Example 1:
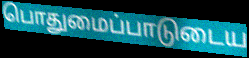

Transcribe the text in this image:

பொதுமைப்பாடுடைய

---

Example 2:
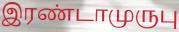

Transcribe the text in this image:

இரண்டாமுருபு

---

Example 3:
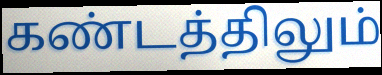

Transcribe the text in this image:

கண்டத்திலும்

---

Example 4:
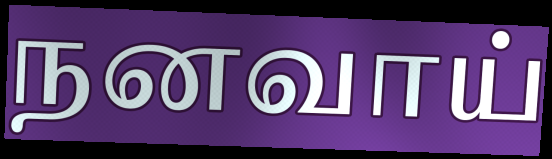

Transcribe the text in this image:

நனவாய்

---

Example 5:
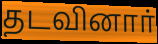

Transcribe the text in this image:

தடவினார்